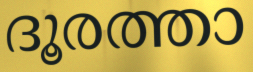
ദൂരത്താ